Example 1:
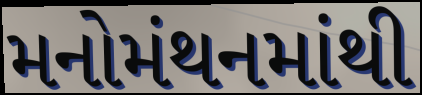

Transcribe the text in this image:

મનોમંથનમાંથી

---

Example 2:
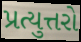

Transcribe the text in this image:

પ્રત્યુત્તરો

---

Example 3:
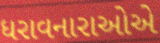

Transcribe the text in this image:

ધરાવનારાઓએ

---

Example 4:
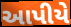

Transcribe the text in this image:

આપીયે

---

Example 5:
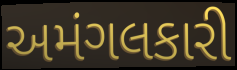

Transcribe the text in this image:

અમંગલકારી